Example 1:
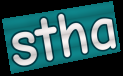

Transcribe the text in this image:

stha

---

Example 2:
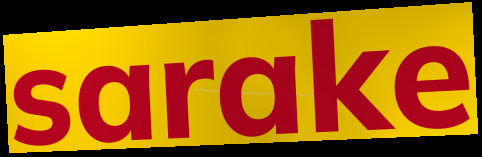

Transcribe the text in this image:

sarake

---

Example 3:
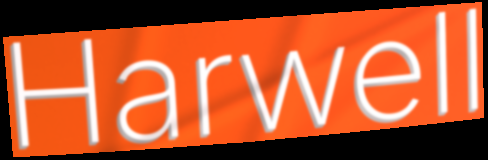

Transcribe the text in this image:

Harwell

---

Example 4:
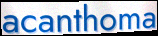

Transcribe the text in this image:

acanthoma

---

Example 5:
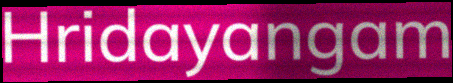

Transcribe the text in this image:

Hridayangam